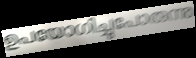
ഉപയോഗിച്ചുപോരുന്നു